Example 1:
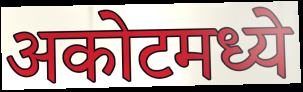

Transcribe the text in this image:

अकोटमध्ये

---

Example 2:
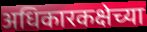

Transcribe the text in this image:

अधिकारकक्षेच्या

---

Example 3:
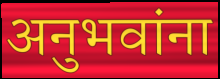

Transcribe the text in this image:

अनुभवांना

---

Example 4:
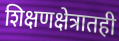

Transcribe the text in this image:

शिक्षणक्षेत्रातही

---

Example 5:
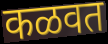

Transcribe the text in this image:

कळवत